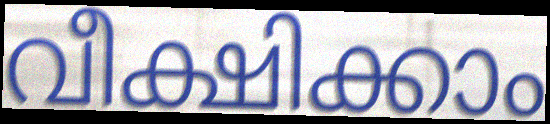
വീക്ഷിക്കാം